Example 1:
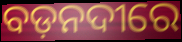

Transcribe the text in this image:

ବଡ଼ନଦୀରେ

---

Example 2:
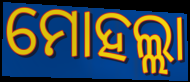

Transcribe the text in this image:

ମୋହଲ୍ଲା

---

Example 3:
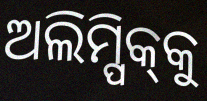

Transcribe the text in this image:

ଅଲିମ୍ପିକ୍‌କୁ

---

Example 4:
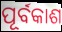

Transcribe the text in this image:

ପୂର୍ବକାଶ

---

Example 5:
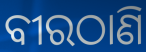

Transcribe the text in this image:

ବୀରଠାଣି